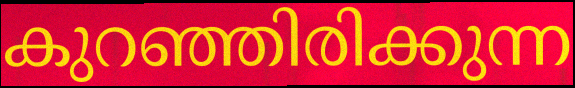
കുറഞ്ഞിരിക്കുന്ന